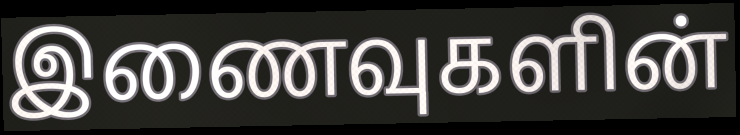
இணைவுகளின்